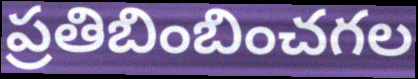
ప్రతిబింబించగల